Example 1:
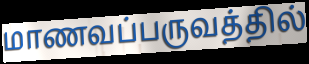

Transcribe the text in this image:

மாணவப்பருவத்தில்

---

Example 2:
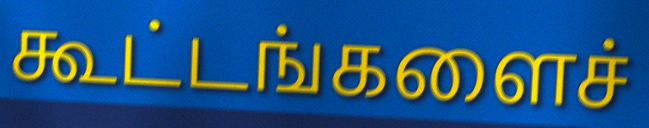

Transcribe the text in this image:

கூட்டங்களைச்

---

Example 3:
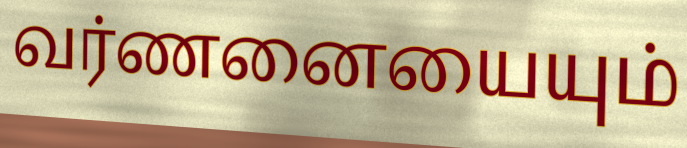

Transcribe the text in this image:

வர்ணனையையும்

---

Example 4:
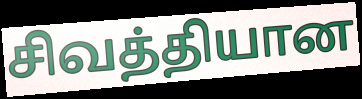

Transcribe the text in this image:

சிவத்தியான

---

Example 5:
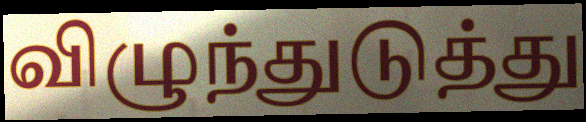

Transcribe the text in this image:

விழுந்துடுத்து